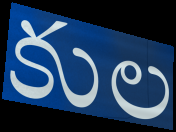
కుల